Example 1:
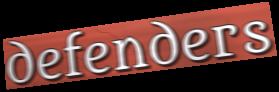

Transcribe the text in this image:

defenders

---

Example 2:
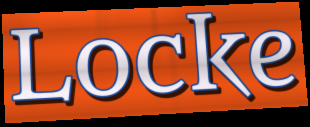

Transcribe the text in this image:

Locke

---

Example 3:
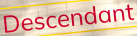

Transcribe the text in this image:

Descendant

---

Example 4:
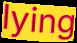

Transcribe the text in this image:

lying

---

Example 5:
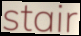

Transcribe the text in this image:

stair